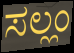
ಸಲ್ಲಂ